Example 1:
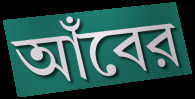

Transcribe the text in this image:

আঁবের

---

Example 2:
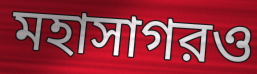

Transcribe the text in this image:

মহাসাগরও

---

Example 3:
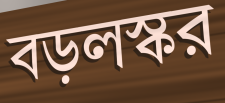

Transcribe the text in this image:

বড়লস্কর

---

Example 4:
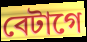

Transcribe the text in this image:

বেটাগে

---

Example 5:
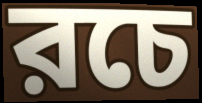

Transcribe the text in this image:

রচে